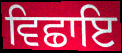
ਵਿਛਾਇ